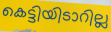
കെട്ടിയിടാറില്ല